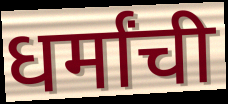
धर्मांची